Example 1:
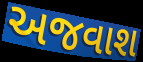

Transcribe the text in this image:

અજવાશ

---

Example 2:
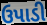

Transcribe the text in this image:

ઉપાડી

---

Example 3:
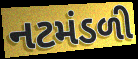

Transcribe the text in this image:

નટમંડળી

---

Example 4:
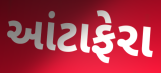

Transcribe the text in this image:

આંટાફેરા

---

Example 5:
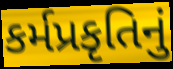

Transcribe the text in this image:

કર્મપ્રકૃતિનું